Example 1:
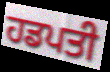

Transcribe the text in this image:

ਹਡਪਤੀ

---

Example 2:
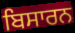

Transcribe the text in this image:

ਬਿਸਾਰਨ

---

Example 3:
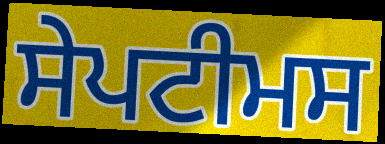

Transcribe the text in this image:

ਸੇਪਟੀਮਸ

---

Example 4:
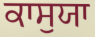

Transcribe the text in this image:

ਕਾਸੁਯਾ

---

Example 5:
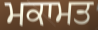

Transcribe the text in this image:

ਮਕਾਮਤ